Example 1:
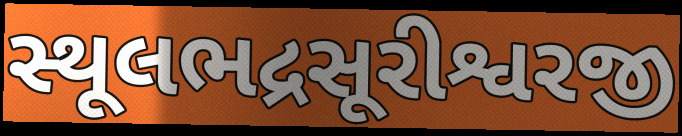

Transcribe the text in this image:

સ્થૂલભદ્રસૂરીશ્વરજી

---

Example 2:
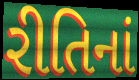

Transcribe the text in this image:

રીતિનાં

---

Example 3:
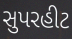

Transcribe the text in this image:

સુપરહીટ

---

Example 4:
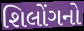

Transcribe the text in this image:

શિલોંગનો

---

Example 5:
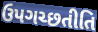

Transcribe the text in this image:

ઉપગચ્છતીતિ